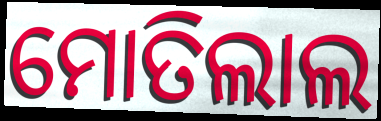
ମୋତିଲାଲ